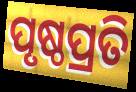
ପୃଷ୍ଠପ୍ରତି